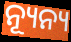
ନ୍ୟୂନ୍ୟ